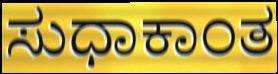
ಸುಧಾಕಾಂತ